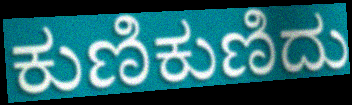
ಕುಣಿಕುಣಿದು